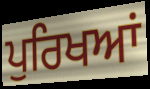
ਪੁਰਿਖਆਂ